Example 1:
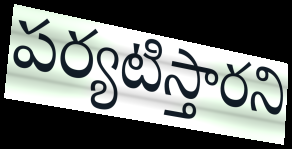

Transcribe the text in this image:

పర్యటిస్తారని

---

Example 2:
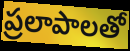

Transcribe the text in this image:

ప్రలాపాలతో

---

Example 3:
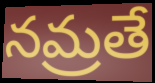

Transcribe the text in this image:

నమ్రతే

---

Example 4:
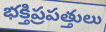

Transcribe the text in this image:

భక్తిప్రపత్తులు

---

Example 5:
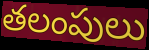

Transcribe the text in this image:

తలంపులు